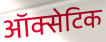
ऑक्सेटिक